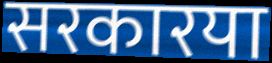
सरकारया